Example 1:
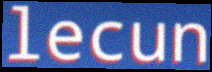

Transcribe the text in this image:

lecun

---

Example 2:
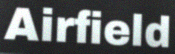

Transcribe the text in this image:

Airfield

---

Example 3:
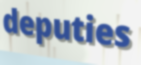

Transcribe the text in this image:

deputies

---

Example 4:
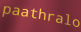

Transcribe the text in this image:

paathralo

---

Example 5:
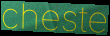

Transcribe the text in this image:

cheste